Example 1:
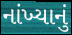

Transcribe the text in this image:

નાંખ્યાનું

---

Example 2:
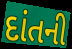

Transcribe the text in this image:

દાંતની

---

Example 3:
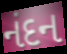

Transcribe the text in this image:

નંદન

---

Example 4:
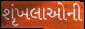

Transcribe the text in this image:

શૃંખલાઓની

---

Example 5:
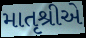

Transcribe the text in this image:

માતૃશ્રીએ